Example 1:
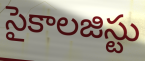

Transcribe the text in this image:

సైకాలజిస్టు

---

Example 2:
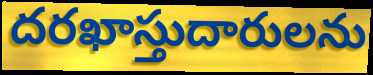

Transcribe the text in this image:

దరఖాస్తుదారులను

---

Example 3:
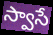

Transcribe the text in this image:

స్వాసే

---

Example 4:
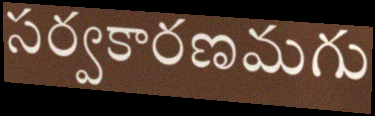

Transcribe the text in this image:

సర్వకారణమగు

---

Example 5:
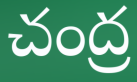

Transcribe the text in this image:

చంద్ర